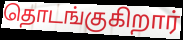
தொடங்குகிறார்